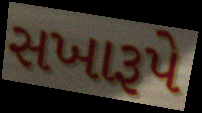
સખારૂપે